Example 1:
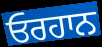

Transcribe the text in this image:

ਓਰਹਾਨ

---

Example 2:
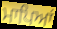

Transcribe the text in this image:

ਮਾਪਿਆਂ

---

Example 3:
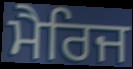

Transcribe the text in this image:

ਮੈਰਿਜ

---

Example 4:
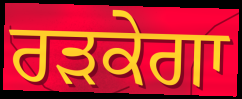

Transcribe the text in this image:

ਰੜਕੇਗਾ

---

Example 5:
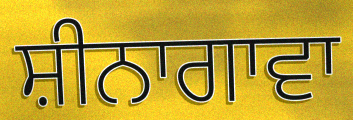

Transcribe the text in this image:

ਸ਼ੀਨਾਗਾਵਾ